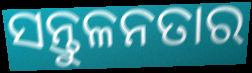
ସନ୍ତୁଳନତାର